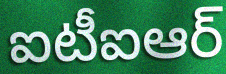
ఐటీఐఆర్